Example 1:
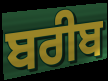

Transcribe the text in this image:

ਬਰੀਬ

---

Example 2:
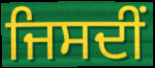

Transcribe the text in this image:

ਜਿਸਦੀਂ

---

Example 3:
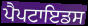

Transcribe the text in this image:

ਪੈਪਟਾਇਡਸ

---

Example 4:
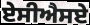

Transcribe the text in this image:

ਏਸੀਐਸਏ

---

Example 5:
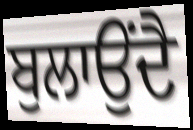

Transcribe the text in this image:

ਬੁਲਾਉਂਦੈ